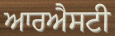
ਆਰਐਸਟੀ